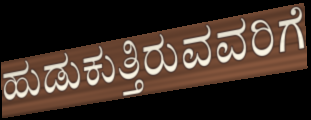
ಹುಡುಕುತ್ತಿರುವವರಿಗೆ